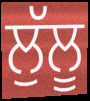
ਲੁੱਲੂ